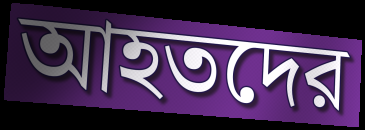
আহতদের